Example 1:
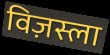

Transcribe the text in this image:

विज़स्ला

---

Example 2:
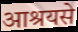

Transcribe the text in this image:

आश्रयसे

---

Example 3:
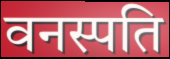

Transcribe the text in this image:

वनस्पति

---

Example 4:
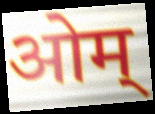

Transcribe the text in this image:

ओम्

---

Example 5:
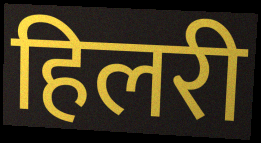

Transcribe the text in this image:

हिलरी